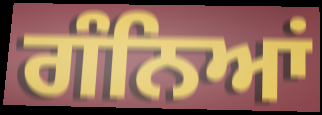
ਗੰਨਿਆਂ